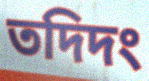
তদিদং